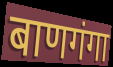
बाणगंगा